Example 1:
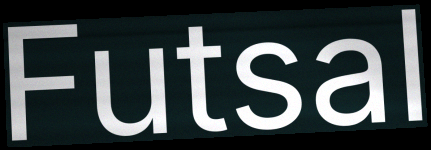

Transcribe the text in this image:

Futsal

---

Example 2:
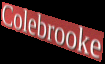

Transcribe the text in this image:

Colebrooke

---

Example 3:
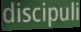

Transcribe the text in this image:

discipuli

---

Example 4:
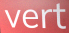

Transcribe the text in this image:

vert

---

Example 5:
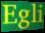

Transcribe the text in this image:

Egli